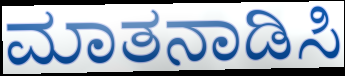
ಮಾತನಾಡಿಸಿ